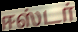
ஈஸ்டர்